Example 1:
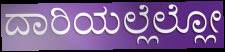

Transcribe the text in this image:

ದಾರಿಯಲ್ಲೆಲ್ಲೋ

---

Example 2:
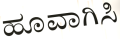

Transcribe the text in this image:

ಹೂವಾಗಿಸಿ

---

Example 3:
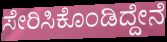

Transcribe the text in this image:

ಸೇರಿಸಿಕೊಂಡಿದ್ದೇನೆ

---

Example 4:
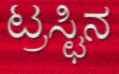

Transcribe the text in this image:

ಟ್ರಸ್ಟಿನ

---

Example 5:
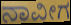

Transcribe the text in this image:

ನಾವೀಗ